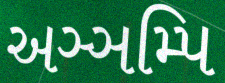
અઞ્ઞમ્પિ